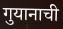
गुयानाची